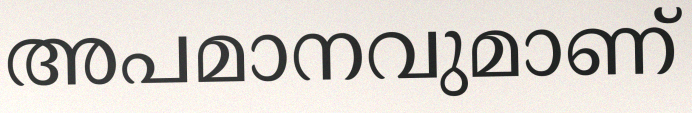
അപമാനവുമാണ്